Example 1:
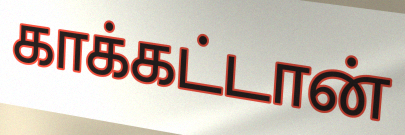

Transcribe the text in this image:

காக்கட்டான்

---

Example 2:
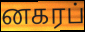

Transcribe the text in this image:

னகரப்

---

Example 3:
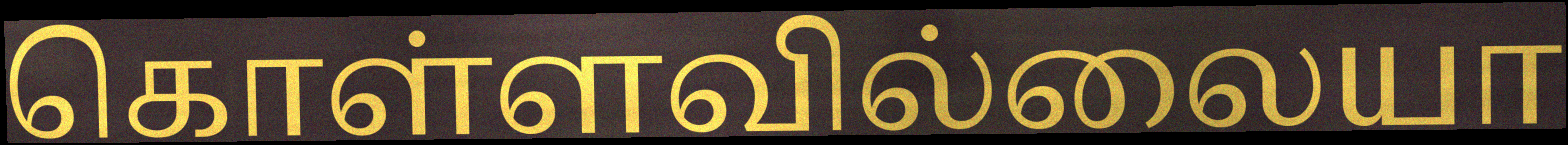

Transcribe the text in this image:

கொள்ளவில்லையா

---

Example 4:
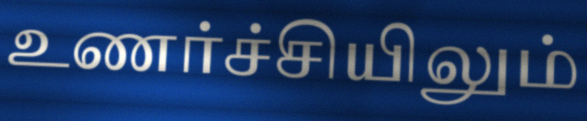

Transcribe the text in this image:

உணர்ச்சியிலும்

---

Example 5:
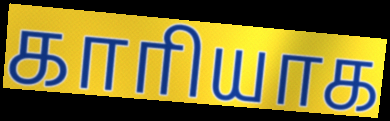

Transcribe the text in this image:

காரியாக